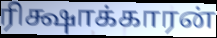
ரிக்ஷாக்காரன்